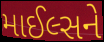
માઈલ્સને